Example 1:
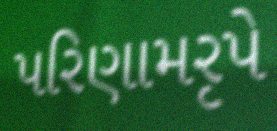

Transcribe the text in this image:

પરિણામરૃપે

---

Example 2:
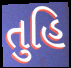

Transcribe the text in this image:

તુહિ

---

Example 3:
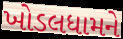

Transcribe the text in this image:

ખોડલધામને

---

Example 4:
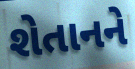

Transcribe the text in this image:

શેતાનને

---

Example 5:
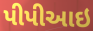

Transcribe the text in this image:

પીપીઆઇ